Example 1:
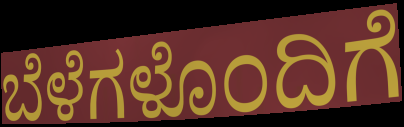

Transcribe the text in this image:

ಬೆಳೆಗಳೊಂದಿಗೆ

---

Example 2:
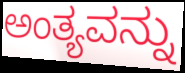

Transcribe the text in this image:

ಅಂತ್ಯವನ್ನು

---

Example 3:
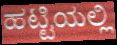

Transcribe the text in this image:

ಹಟ್ಟಿಯಲ್ಲಿ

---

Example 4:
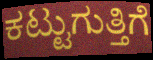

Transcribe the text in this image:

ಕಟ್ಟುಗುತ್ತಿಗೆ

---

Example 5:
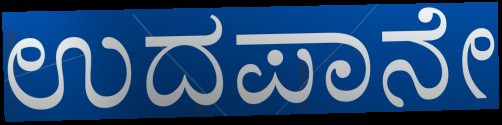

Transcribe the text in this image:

ಉದಪಾನೇ